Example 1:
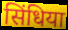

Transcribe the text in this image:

सिंधिया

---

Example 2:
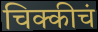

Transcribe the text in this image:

चिक्कीचं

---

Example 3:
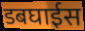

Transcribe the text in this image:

डबघाईस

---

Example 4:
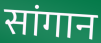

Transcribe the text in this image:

सांगान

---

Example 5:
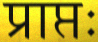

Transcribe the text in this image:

प्राप्तः